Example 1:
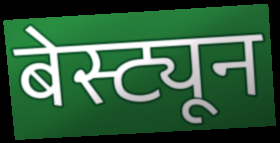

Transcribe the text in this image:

बेस्ट्यून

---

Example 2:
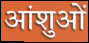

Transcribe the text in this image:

आंशुओं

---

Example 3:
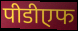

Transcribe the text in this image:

पीडीएफ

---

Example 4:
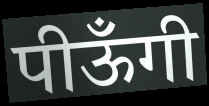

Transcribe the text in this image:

पीऊँगी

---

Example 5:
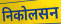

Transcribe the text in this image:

निकोलसन